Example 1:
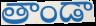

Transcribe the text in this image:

తాండా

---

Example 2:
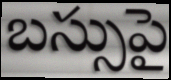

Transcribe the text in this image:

బస్సుపై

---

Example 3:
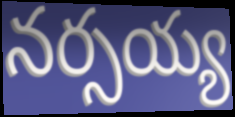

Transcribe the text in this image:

నర్సయ్య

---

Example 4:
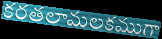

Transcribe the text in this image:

కరతలామలకముగా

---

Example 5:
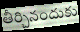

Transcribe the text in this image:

తీర్చినందుకు